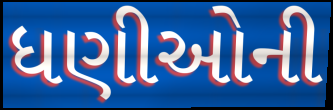
ધણીઓની